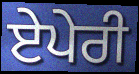
ਏਪੇਰੀ